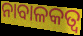
ନାବାଳକତ୍ଵ